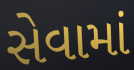
સેવામાં